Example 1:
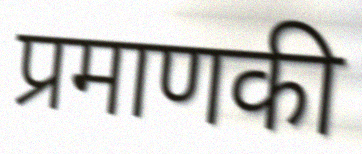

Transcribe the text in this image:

प्रमाणकी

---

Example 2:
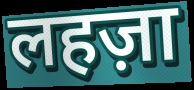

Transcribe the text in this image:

लहज़ा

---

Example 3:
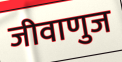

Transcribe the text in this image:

जीवाणुज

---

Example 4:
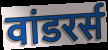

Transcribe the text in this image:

वांडरर्स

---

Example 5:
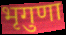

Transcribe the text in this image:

भृगुणा